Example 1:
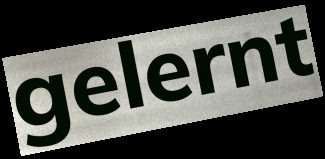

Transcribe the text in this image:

gelernt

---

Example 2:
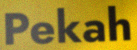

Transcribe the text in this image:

Pekah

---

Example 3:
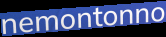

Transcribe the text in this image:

nemontonno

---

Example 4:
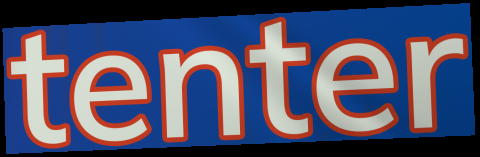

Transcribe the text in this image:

tenter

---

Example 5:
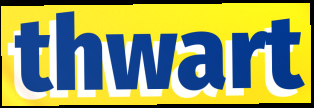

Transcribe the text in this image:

thwart